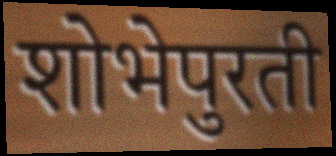
शोभेपुरती